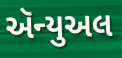
ઍન્યુઅલ